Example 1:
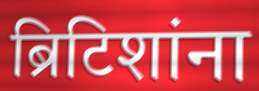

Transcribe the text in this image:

ब्रिटिशांना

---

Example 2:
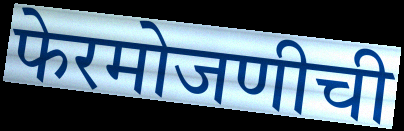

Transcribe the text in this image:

फेरमोजणीची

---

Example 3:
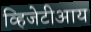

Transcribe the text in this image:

व्हिजेटीआय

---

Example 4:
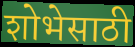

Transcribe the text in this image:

शोभेसाठी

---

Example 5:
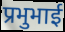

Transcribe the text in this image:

प्रभुभाई